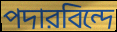
পদারবিন্দে